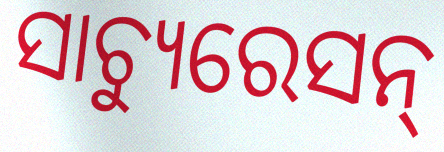
ସାଚ୍ୟୁରେସନ୍